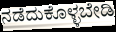
ನಡೆದುಕೊಳ್ಳಬೇಡಿ